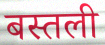
बस्तली